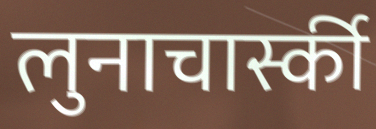
लुनाचार्स्की